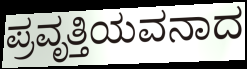
ಪ್ರವೃತ್ತಿಯವನಾದ